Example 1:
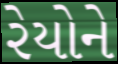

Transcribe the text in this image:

રેયોને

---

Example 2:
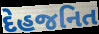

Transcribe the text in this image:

દેહજનિત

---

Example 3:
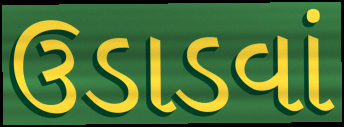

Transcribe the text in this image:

ઉડાડવાં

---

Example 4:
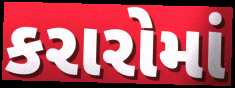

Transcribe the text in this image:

કરારોમાં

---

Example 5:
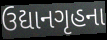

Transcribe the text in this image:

ઉદ્યાનગૃહના